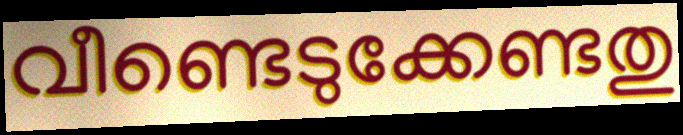
വീണ്ടെടുക്കേണ്ടതു